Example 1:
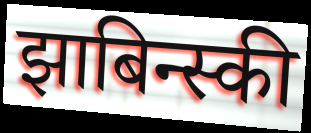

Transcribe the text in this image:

झाबिन्स्की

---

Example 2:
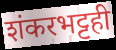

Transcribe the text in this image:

शंकरभट्टही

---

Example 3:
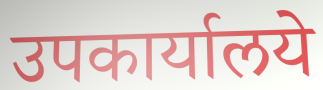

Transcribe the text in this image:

उपकार्यालये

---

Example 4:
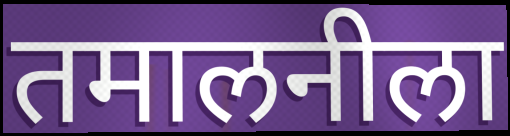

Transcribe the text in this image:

तमालनीला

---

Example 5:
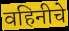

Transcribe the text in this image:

वहिनीचे